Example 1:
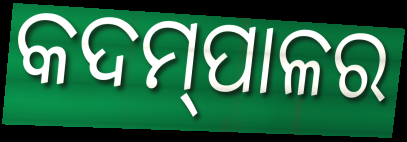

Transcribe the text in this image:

କଦମ୍‍ପାଳର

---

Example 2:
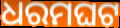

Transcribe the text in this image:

ଧରମଘଟ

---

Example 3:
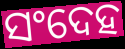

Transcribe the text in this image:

ସଂଦେହ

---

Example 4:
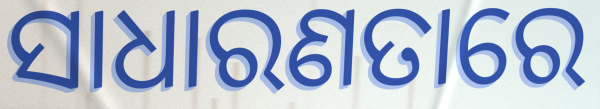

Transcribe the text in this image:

ସାଧାରଣତାରେ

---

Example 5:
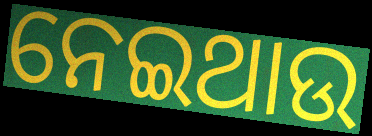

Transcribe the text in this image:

ନେଇଥାଉ